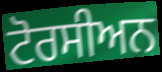
ਟੋਰਸੀਅਨ